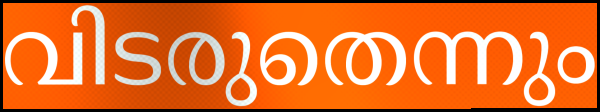
വിടരുതെന്നും